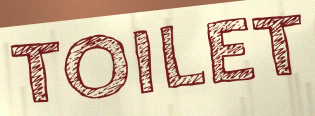
TOILET